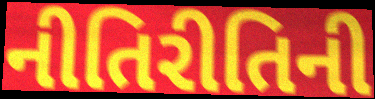
નીતિરીતિની